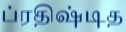
ப்ரதிஷ்டித